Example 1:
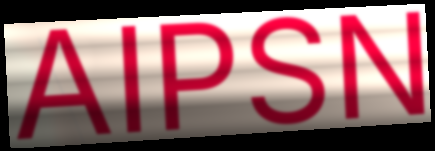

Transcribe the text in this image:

AIPSN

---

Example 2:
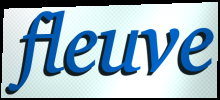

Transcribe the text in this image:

fleuve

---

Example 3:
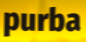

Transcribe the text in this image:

purba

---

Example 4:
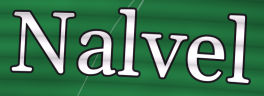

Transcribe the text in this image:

Nalvel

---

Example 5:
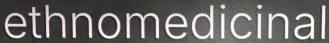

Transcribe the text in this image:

ethnomedicinal